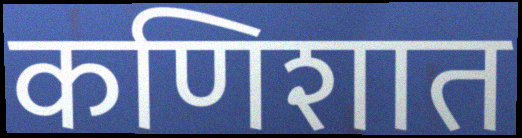
कणिशात